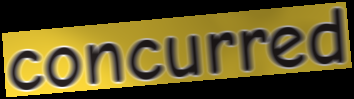
concurred